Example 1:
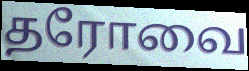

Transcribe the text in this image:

தரோவை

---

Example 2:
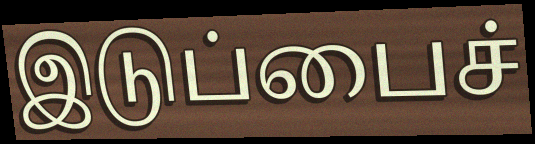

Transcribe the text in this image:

இடுப்பைச்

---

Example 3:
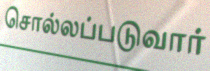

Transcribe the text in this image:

சொல்லப்படுவார்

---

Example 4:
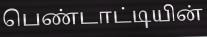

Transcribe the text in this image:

பெண்டாட்டியின்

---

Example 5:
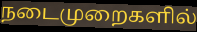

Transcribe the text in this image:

நடைமுறைகளில்